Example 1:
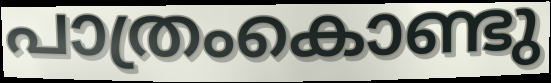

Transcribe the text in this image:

പാത്രംകൊണ്ടു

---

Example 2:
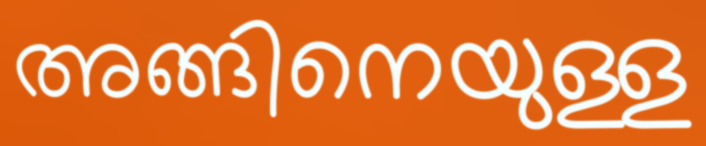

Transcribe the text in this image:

അങ്ങിനെയുള്ള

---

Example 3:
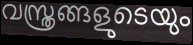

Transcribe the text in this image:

വസ്ത്രങ്ങളുടെയും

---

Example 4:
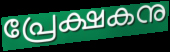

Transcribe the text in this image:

പ്രേക്ഷകനു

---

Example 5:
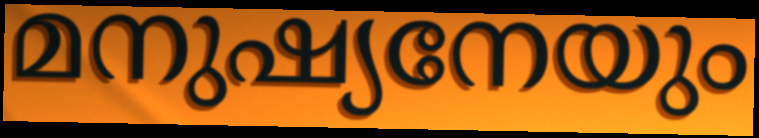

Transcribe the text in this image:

മനുഷ്യനേയും